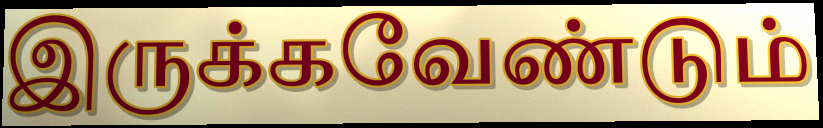
இருக்கவேண்டும்